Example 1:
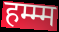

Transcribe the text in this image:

हम्म्म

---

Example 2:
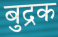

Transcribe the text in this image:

बुद्रक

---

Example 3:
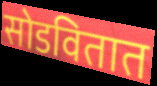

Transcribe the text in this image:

सोडवितात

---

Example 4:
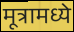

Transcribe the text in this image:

मूत्रामध्ये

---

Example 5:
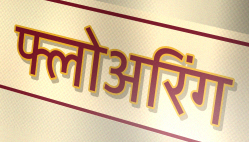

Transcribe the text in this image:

फ्लोअरिंग